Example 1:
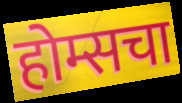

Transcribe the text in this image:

होम्सचा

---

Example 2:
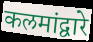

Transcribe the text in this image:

कलमांद्वारे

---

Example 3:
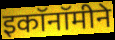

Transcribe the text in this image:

इकॉनॉमीने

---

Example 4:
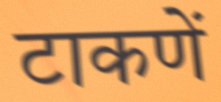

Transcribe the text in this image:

टाकणें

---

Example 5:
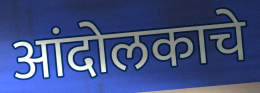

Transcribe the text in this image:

आंदोलकाचे